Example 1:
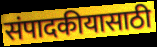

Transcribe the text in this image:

संपादकीयासाठी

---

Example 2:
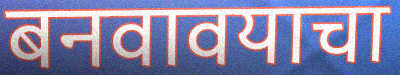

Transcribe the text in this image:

बनवावयाचा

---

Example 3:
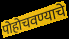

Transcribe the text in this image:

पोहोचवण्याचे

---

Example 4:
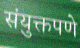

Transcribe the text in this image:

संयुक्तपणे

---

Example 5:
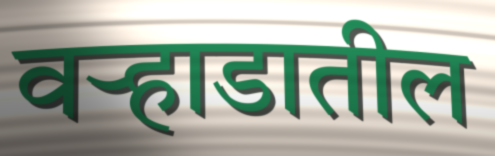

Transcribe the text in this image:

वऱ्हाडातील